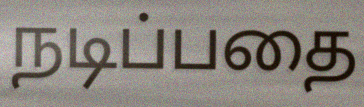
நடிப்பதை